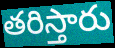
తరిస్తారు